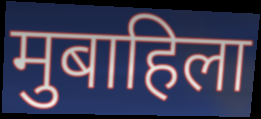
मुबाहिला